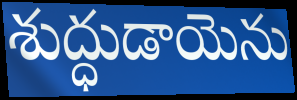
శుద్ధుడాయెను